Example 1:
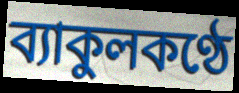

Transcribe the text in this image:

ব্যাকুলকণ্ঠে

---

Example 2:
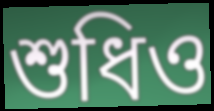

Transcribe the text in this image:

শুধিও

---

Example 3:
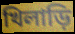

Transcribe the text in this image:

খিলাড়ি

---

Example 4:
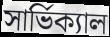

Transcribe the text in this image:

সার্ভিক্যাল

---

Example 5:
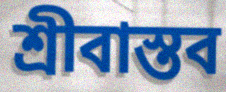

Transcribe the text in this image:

শ্রীবাস্তব